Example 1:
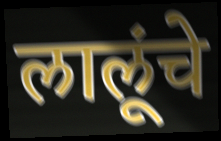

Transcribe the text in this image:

लालूंचे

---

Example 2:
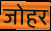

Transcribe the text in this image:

जोहर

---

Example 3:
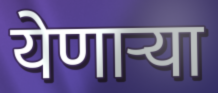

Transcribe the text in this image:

येणाऱ्या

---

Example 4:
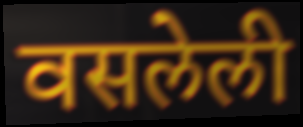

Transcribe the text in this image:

वसलेली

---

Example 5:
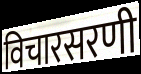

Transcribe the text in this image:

विचारसरणी